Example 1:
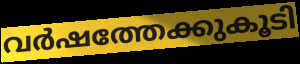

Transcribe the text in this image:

വർഷത്തേക്കുകൂടി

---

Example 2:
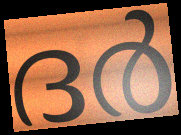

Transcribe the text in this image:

ദർ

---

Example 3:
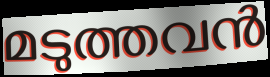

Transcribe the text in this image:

മടുത്തവൻ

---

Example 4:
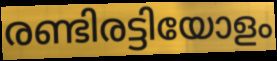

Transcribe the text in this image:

രണ്ടിരട്ടിയോളം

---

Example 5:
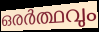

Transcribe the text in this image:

ഒരർത്ഥവും